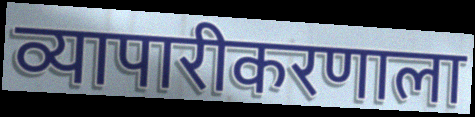
व्यापारीकरणाला